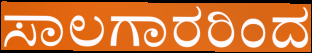
ಸಾಲಗಾರರಿಂದ